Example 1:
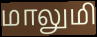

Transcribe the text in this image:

மாலுமி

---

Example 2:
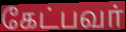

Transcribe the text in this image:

கேட்பவர்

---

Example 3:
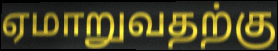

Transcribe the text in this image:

ஏமாறுவதற்கு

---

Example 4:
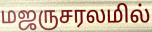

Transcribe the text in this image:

மஜருசரலமில்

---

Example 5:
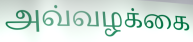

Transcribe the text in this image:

அவ்வழக்கை